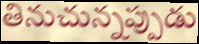
తినుచున్నప్పుడు